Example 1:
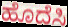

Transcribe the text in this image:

ಹೊದೆಸಿ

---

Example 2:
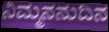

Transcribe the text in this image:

ನಿಮ್ಮನನುದಿನ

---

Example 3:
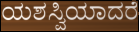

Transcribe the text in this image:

ಯಶಸ್ವಿಯಾದರೆ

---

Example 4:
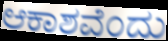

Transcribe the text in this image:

ಆಕಾಶವೆಂದು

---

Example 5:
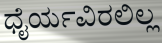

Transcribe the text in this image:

ಧೈರ್ಯವಿರಲಿಲ್ಲ